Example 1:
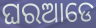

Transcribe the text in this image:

ଘରଆଡେ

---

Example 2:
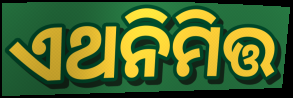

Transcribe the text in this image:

ଏଥନିମିତ୍ତ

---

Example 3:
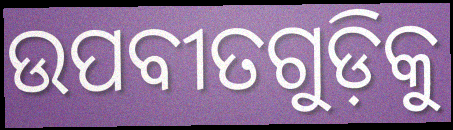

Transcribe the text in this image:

ଉପବୀତଗୁଡ଼ିକୁ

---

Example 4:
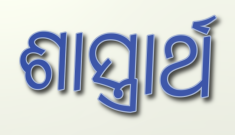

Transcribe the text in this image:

ଶାସ୍ତ୍ରାର୍ଥ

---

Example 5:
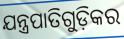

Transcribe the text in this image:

ଯନ୍ତ୍ରପାତିଗୁଡ଼ିକର